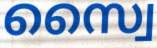
സ്വൈ